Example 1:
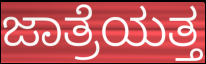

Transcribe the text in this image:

ಜಾತ್ರೆಯತ್ತ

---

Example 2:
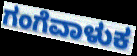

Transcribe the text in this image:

ಗಂಗೆವಾಳುಕ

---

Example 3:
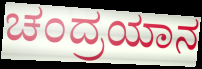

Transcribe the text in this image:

ಚಂದ್ರಯಾನ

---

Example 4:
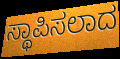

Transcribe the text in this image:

ಸ್ಥಾಪಿಸಲಾದ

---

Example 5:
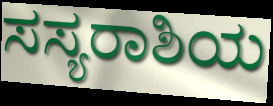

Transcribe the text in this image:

ಸಸ್ಯರಾಶಿಯ